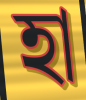
হা